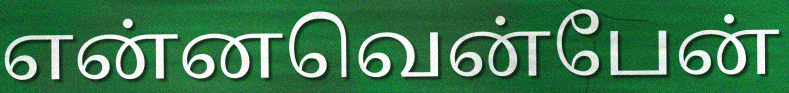
என்னவென்பேன்